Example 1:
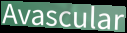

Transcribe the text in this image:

Avascular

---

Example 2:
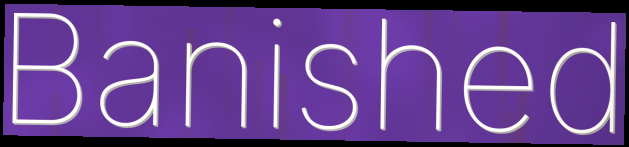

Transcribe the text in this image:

Banished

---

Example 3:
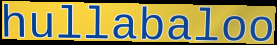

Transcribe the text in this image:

hullabaloo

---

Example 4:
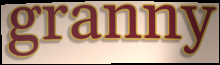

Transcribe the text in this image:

granny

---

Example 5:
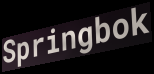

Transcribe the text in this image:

Springbok